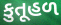
કુતૂહળ